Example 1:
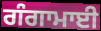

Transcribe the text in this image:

ਗੰਗਾਮਾਈ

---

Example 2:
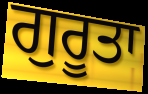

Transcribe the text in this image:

ਗੁਰੂਤਾ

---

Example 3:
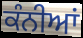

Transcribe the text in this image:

ਕੰਨੀਆਂ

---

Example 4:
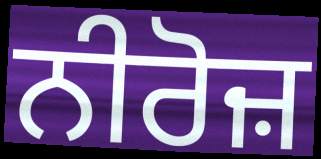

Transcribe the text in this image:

ਨੀਰੋਜ਼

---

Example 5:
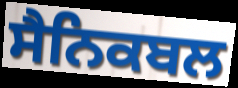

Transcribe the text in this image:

ਸੈਨਿਕਬਲ